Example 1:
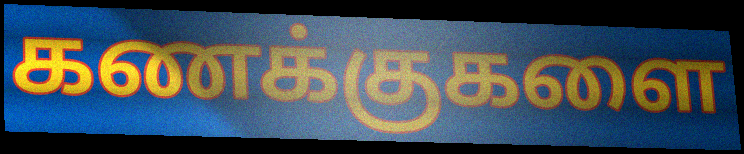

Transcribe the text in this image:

கணக்குகளை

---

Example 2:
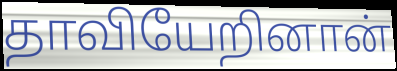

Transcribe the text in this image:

தாவியேறினான்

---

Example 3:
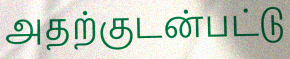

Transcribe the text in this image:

அதற்குடன்பட்டு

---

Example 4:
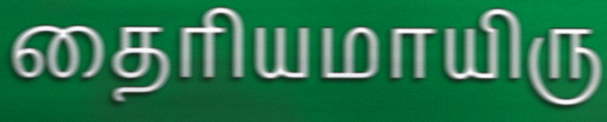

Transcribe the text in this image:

தைரியமாயிரு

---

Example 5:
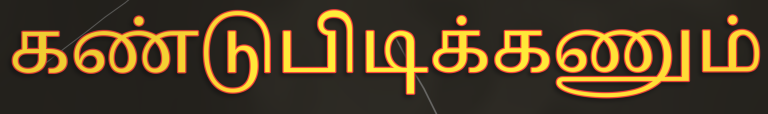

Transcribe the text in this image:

கண்டுபிடிக்கணும்